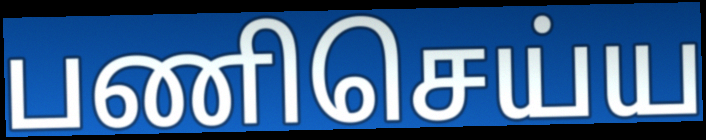
பணிசெய்ய